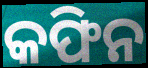
କଫିନ